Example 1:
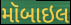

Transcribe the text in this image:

મૉબાઇલ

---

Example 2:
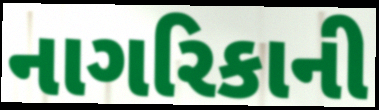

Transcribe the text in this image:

નાગરિકાની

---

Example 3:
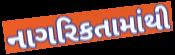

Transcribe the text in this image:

નાગરિકતામાંથી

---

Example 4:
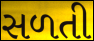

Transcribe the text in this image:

સળતી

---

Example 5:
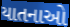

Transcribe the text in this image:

યાતનાઓ